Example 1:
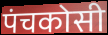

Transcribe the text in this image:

पंचकोसी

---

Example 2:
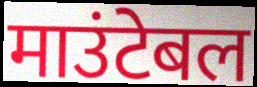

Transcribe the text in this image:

माउंटेबल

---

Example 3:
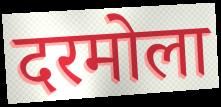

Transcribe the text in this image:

दरमोला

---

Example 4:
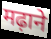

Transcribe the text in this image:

मढ़ाने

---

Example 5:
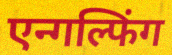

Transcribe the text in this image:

एन्गल्फिंग